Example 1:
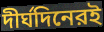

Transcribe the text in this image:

দীর্ঘদিনেরই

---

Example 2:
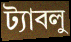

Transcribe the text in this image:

ট্যাবলু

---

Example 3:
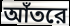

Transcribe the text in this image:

আঁতরে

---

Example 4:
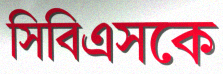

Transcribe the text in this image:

সিবিএসকে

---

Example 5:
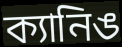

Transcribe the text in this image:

ক্যানিঙ